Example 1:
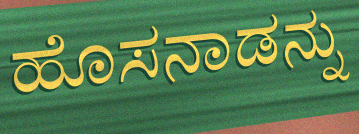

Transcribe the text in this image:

ಹೊಸನಾಡನ್ನು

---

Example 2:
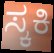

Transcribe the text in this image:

ಸ್ಕಕಿ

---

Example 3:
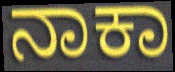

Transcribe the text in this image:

ನಾಕಾ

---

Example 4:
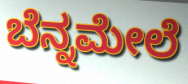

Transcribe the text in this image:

ಬೆನ್ನಮೇಲೆ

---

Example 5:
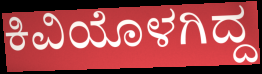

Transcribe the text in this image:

ಕಿವಿಯೊಳಗಿದ್ದ